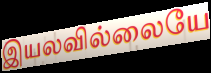
இயலவில்லையே